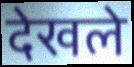
देखले